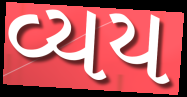
વ્યય